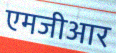
एमजीआर